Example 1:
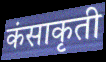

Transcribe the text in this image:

कंसाकृती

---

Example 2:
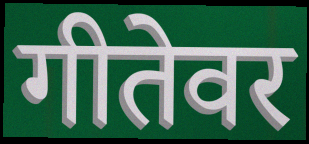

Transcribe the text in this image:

गीतेवर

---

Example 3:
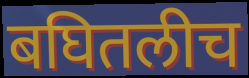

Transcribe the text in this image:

बघितलीच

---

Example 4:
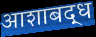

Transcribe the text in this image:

आशाबद्ध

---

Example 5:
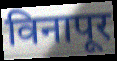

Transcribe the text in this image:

विनापूर